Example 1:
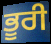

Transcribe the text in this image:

ਭੂਰੀ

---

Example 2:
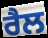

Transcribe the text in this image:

ਰੈਲ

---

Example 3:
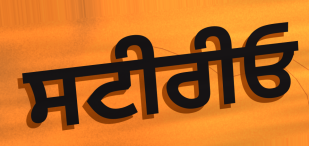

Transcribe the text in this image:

ਸਟੀਰੀਓ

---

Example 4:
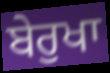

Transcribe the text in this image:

ਬੇਰੁਖਾ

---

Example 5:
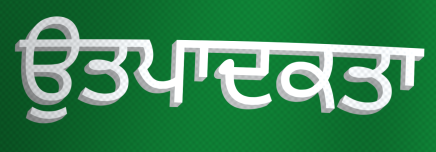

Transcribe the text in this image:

ਉਤਪਾਦਕਤਾ